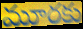
మూరకు